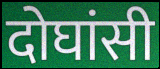
दोघांसी